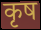
कृष